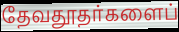
தேவதூதர்களைப்